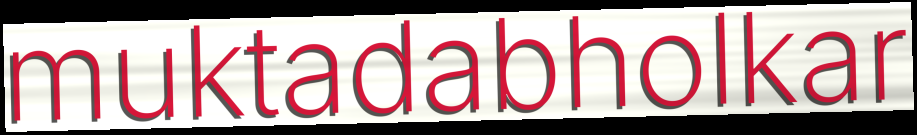
muktadabholkar